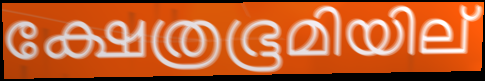
ക്ഷേത്രഭൂമിയില്